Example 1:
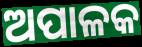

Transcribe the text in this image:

ଅପାଳକ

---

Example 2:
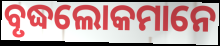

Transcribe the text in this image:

ବୃଦ୍ଧଲୋକମାନେ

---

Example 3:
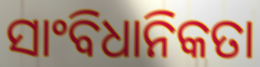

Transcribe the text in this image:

ସାଂବିଧାନିକତା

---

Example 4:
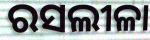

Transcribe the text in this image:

ରସଲୀଳା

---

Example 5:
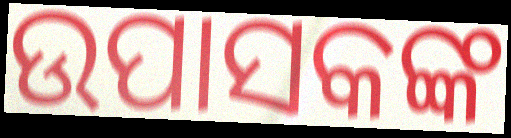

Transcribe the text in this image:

ଉପାସକଙ୍କ